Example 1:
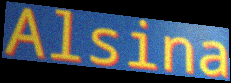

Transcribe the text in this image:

Alsina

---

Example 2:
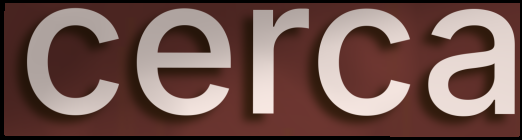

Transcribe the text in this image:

cerca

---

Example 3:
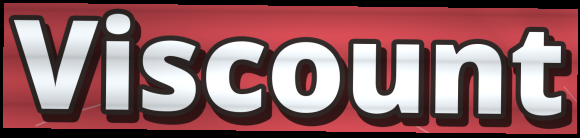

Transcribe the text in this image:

Viscount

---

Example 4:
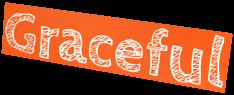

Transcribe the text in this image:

Graceful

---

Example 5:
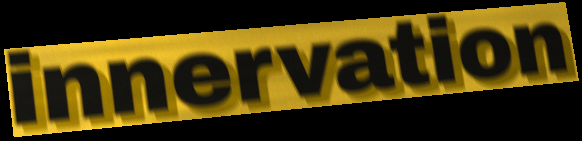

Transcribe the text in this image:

innervation